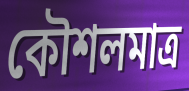
কৌশলমাত্র